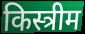
किस्त्रीम